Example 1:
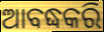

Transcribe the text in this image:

ଆବଦ୍ଧକରି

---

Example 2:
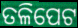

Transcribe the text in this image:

ତଳିପେଟ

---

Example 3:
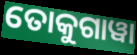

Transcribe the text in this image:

ତୋକୁଗାୱା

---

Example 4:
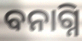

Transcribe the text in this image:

ବନାଗ୍ନି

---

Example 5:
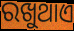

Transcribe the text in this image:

ରଖୁଥାଏ